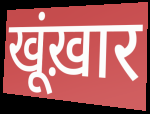
खूंख़ार